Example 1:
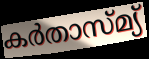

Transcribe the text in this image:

കർതാസ്മ്യ്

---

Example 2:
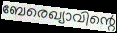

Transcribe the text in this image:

ബേരെഖ്യാവിന്റെ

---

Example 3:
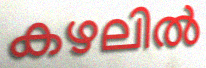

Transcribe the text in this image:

കഴലിൽ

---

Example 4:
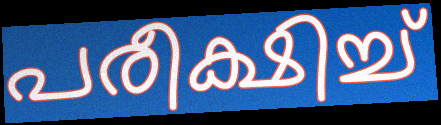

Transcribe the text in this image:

പരീക്ഷിച്ച്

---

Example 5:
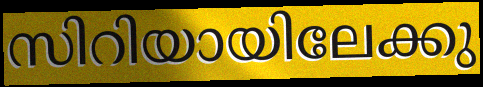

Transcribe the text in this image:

സിറിയായിലേക്കു